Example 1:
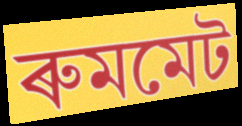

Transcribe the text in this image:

ৰুমমেট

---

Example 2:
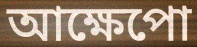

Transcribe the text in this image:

আক্ষেপো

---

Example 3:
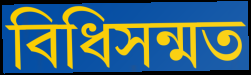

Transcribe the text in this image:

বিধিসন্মত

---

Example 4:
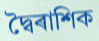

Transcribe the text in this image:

দ্বৈৰাশিক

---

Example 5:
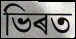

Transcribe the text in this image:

ভিৰত